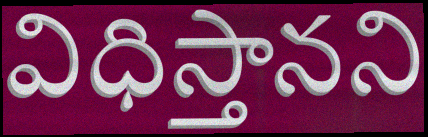
విధిస్తానని